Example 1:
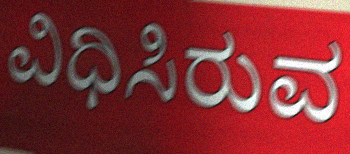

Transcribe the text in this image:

ವಿಧಿಸಿರುವ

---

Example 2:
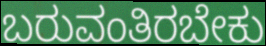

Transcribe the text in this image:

ಬರುವಂತಿರಬೇಕು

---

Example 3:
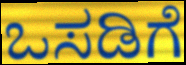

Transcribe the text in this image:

ಒಸಡಿಗೆ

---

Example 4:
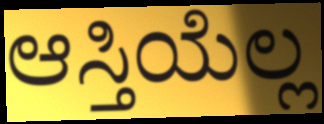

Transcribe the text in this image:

ಆಸ್ತಿಯೆಲ್ಲ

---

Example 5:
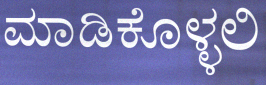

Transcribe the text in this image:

ಮಾಡಿಕೊಳ್ಳಲಿ